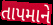
તાપમાને